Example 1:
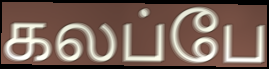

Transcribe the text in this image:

கலப்பே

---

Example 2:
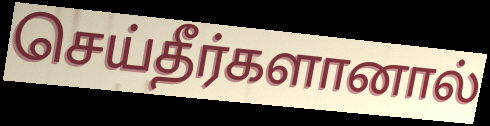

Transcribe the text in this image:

செய்தீர்களானால்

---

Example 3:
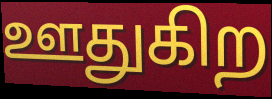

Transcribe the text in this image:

ஊதுகிற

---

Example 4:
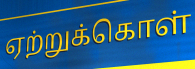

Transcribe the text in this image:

ஏற்றுக்கொள்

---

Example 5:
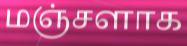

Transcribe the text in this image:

மஞ்சளாக